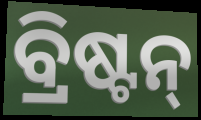
ବ୍ରିଷ୍ଟନ୍